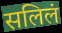
सलिलं